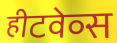
हीटवेव्स